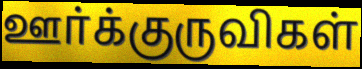
ஊர்க்குருவிகள்